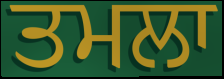
ਤਮਲਾ